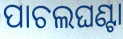
ପାଚଲଘଣ୍ଟା